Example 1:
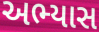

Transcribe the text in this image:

અભ્યાસ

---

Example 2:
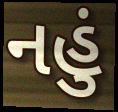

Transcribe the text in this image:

નહું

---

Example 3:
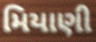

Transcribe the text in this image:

મિયાણી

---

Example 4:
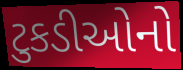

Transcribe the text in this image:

ટુકડીઓનો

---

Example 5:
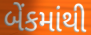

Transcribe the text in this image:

બેંકમાંથી